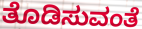
ತೊಡಿಸುವಂತೆ